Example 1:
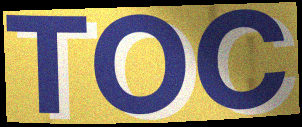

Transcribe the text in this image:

TOC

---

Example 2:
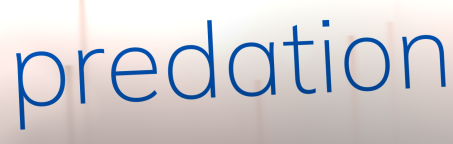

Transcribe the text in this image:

predation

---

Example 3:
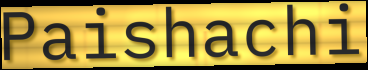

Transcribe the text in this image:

Paishachi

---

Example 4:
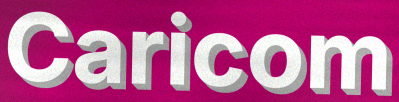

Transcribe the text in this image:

Caricom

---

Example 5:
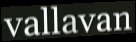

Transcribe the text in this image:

vallavan